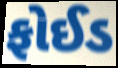
ફોઈડ